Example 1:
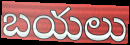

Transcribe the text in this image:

బయలు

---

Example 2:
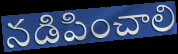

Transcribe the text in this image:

నడిపించాలి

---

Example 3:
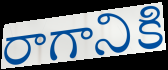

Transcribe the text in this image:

రాగానికి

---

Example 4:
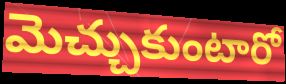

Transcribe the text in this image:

మెచ్చుకుంటారో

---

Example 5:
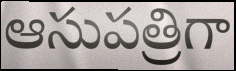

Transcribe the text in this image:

ఆసుపత్రిగా